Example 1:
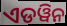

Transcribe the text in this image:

ଏଡୱିନ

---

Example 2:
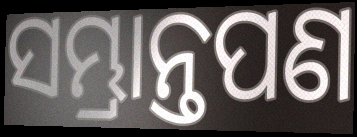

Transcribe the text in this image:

ସମ୍ଭ୍ରାନ୍ତପଣ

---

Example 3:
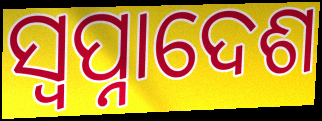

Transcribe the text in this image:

ସ୍ଵପ୍ନାଦେଶ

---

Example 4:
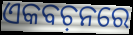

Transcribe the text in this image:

ଏକବଚ଼ନରେ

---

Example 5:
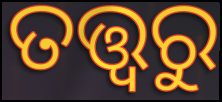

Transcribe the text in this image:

ତତ୍ତ୍ୱରୁ